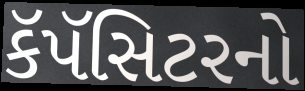
કૅપૅસિટરનો